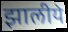
झालीये